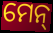
ମେନ୍